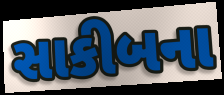
સાકીબના